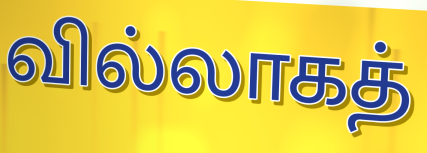
வில்லாகத்